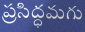
ప్రసిద్ధమగు